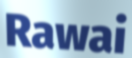
Rawai